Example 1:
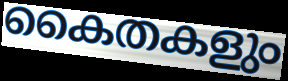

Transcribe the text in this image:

കൈതകളും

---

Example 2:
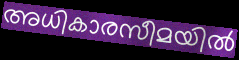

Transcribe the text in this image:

അധികാരസീമയിൽ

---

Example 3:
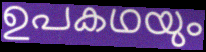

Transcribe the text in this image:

ഉപകഥയും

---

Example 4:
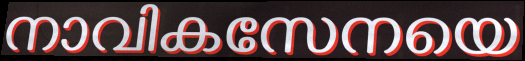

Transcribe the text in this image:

നാവികസേനയെ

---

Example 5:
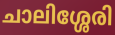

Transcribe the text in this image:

ചാലിശ്ശേരി